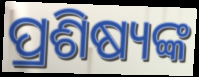
ପ୍ରଶିଷ୍ୟଙ୍କ